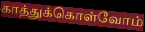
காத்துக்கொள்வோம்